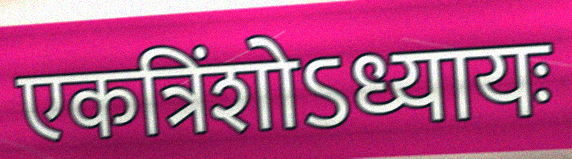
एकत्रिंशोऽध्यायः